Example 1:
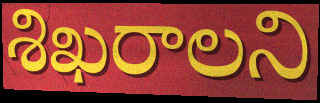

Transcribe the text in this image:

శిఖరాలని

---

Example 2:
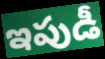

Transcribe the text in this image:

ఇపుడీ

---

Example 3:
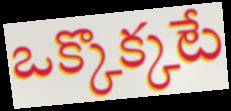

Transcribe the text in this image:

ఒక్కొక్కటే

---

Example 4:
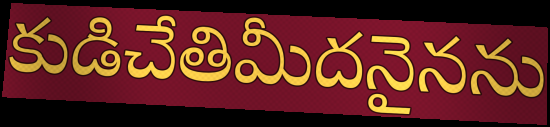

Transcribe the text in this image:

కుడిచేతిమీదనైనను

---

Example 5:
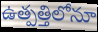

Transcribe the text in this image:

ఉత్పత్తిలోనూ